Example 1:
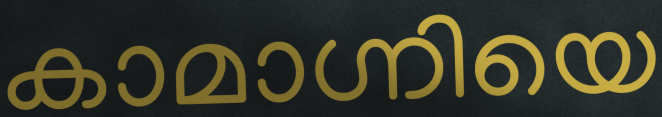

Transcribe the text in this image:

കാമാഗ്നിയെ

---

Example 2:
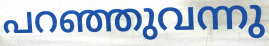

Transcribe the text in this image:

പറഞ്ഞുവന്നു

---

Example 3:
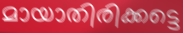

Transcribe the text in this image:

മായാതിരിക്കട്ടെ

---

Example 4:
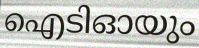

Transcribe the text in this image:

ഐടിഓയും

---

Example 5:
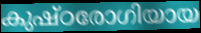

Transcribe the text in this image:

കുഷ്ഠരോഗിയായ